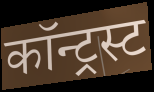
कॉन्ट्रस्ट